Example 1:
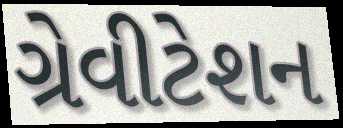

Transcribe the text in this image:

ગ્રેવીટેશન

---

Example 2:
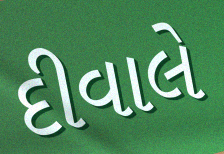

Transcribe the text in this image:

દીવાલે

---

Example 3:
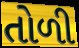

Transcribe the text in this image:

તોળી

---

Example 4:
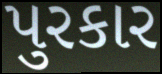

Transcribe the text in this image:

પુરકાર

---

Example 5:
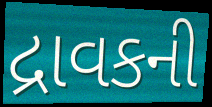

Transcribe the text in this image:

દ્રાવકની